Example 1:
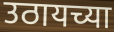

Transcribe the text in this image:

उठायच्या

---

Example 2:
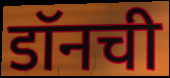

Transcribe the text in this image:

डॉनची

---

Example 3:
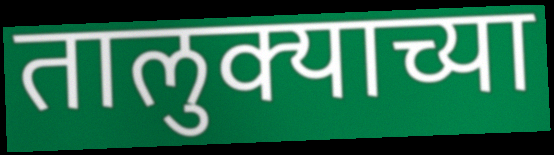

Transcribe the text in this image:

तालुक्याच्या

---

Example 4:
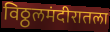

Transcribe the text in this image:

विठ्ठलमंदीरातला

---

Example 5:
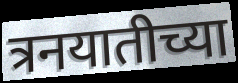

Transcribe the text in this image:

त्रनयातीच्या